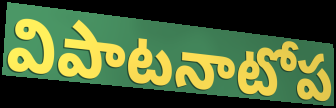
విపాటనాటోప